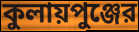
কুলায়পুঞ্জের